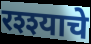
रश्श्याचे